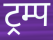
ट्रम्‍प